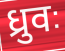
ध्रुवः